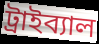
ট্রাইব্যাল